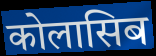
कोलासिब